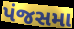
પંજસમા